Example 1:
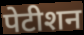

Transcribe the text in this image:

पेटीशन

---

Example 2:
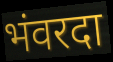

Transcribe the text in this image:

भंवरदा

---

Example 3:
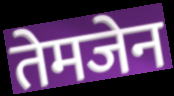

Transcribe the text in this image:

तेमजेन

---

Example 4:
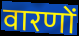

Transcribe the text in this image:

वारणों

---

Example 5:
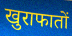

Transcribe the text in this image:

खुराफातों